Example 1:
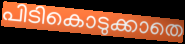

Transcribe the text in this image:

പിടികൊടുക്കാതെ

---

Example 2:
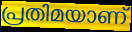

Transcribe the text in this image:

പ്രതിമയാണ്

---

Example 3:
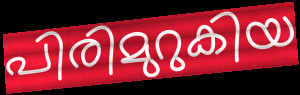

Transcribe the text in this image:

പിരിമുറുകിയ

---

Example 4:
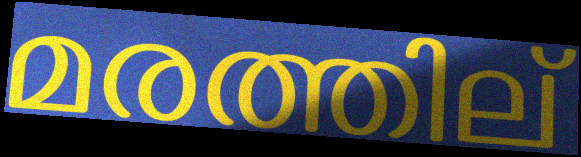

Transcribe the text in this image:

മരത്തില്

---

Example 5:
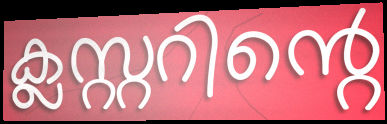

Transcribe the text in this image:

ക്ലസ്റ്ററിന്റെ